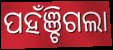
ପହଁଞ୍ଚିଗଲା